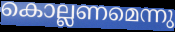
കൊല്ലണമെന്നു